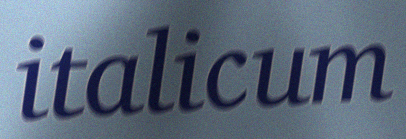
italicum